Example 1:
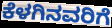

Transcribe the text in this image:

ಕೆಳಗಿನವರಿಗೆ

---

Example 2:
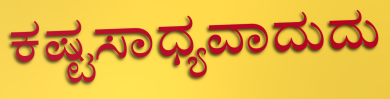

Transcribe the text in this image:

ಕಷ್ಟಸಾಧ್ಯವಾದುದು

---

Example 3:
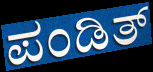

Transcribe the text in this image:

ಪಂಡಿತ್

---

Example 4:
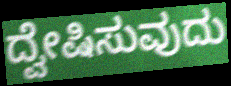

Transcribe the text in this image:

ದ್ವೇಷಿಸುವುದು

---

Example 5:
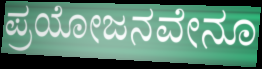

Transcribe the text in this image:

ಪ್ರಯೋಜನವೇನೂ